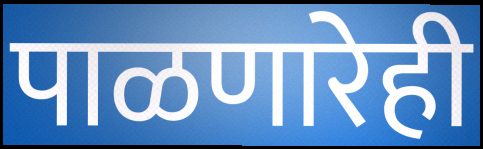
पाळणारेही